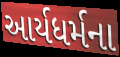
આર્યધર્મના